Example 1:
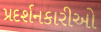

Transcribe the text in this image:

પ્રદર્શનકારીઓ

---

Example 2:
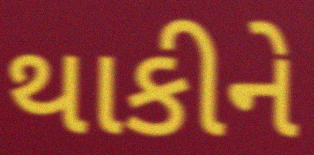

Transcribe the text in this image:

થાકીને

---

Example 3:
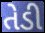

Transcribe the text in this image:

તેડી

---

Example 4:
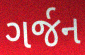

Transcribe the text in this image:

ગર્જન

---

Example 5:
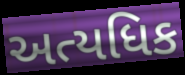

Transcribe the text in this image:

અત્યધિક